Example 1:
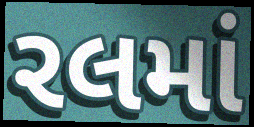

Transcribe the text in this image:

રલમાં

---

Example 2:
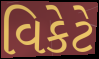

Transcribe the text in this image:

વિકેટે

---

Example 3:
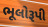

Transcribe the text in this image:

ભૂલોરૂપી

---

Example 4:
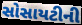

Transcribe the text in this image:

સોસાયટીની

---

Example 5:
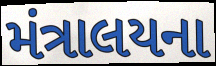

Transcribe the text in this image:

મંત્રાલયના